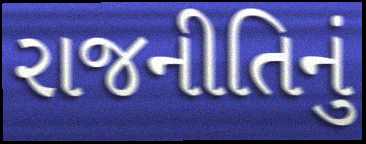
રાજનીતિનું